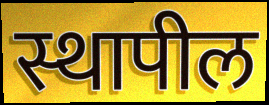
स्थापील